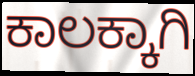
ಕಾಲಕ್ಕಾಗಿ